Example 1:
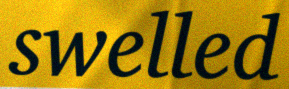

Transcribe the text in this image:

swelled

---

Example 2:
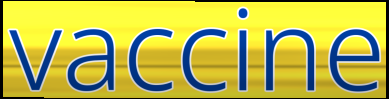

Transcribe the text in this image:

vaccine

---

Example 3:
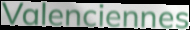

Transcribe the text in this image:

Valenciennes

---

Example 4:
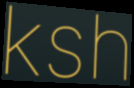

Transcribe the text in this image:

ksh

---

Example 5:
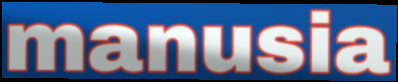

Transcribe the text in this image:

manusia